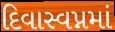
દિવાસ્વપ્નમાં